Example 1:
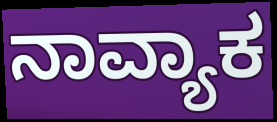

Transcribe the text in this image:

ನಾವ್ಯಾಕ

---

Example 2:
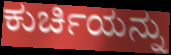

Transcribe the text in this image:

ಕುರ್ಚಿಯನ್ನು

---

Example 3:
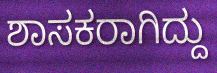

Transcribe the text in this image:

ಶಾಸಕರಾಗಿದ್ದು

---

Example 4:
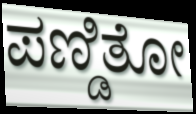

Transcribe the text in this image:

ಪಣ್ಡಿತೋ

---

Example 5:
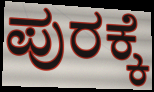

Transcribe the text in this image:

ಪುರಕ್ಕೆ